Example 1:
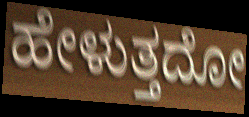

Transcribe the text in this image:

ಹೇಳುತ್ತದೋ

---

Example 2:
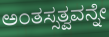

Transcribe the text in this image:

ಅಂತಸ್ಸತ್ವವನ್ನೇ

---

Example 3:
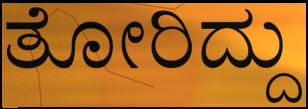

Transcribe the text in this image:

ತೋರಿದ್ದು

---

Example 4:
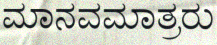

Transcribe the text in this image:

ಮಾನವಮಾತ್ರರು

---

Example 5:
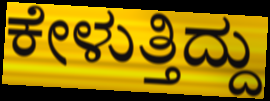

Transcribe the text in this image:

ಕೇಳುತ್ತಿದ್ದು